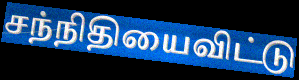
சந்நிதியைவிட்டு